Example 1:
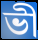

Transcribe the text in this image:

ভী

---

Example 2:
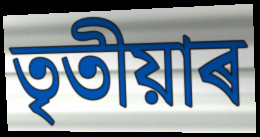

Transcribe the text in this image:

তৃতীয়াৰ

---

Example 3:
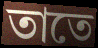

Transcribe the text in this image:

তাতে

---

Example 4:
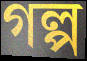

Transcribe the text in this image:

গল্প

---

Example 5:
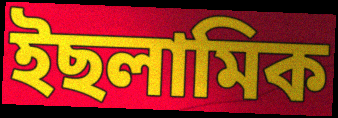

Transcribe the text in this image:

ইছলামিক